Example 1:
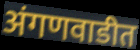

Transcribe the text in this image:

अंगणवाडीत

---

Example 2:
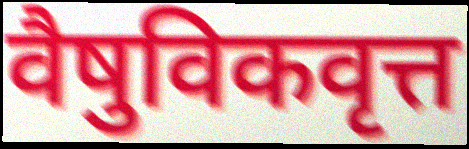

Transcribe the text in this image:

वैषुविकवृत्त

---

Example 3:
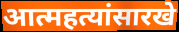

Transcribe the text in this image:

आत्महत्यांसारखे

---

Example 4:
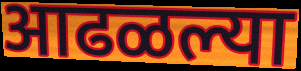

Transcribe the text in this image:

आढळल्या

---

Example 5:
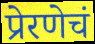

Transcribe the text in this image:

प्रेरणेचं